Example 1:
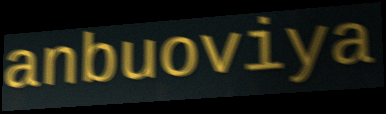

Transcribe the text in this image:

anbuoviya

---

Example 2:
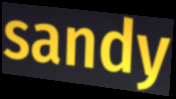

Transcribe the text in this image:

sandy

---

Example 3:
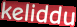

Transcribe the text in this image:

keliddu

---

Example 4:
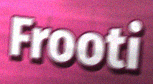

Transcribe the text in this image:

Frooti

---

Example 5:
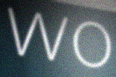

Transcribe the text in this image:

wo